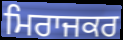
ਮਿਰਾਜਕਰ